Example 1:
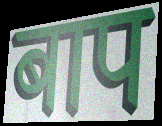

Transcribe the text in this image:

बाप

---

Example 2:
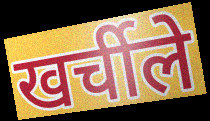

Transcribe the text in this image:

खर्चीले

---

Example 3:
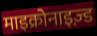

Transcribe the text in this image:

माइक्रोनाइज़्ड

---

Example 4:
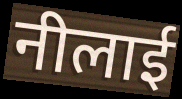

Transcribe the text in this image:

नीलाई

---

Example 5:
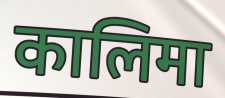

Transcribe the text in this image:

कालिमा